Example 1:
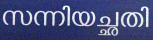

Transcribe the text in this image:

സന്നിയച്ഛതി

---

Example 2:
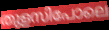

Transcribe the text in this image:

തുളസിപോലെ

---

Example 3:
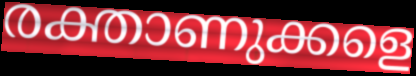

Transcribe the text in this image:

രക്താണുക്കളെ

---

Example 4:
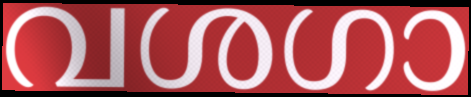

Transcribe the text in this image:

വശഗാ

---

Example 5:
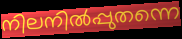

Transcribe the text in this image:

നിലനിൽപ്പുതന്നെ